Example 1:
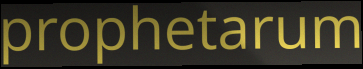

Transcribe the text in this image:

prophetarum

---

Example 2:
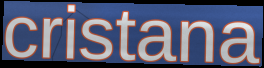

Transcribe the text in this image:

cristana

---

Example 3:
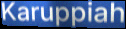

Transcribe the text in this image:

Karuppiah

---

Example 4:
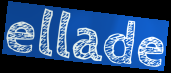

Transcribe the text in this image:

ellade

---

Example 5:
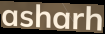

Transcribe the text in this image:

asharh